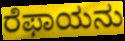
ರೆಫಾಯನು